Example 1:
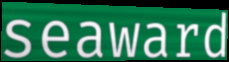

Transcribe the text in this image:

seaward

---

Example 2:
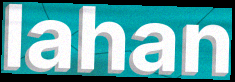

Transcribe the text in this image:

lahan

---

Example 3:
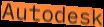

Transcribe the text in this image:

Autodesk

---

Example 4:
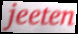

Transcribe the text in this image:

jeeten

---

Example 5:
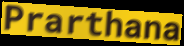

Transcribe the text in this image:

Prarthana